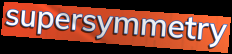
supersymmetry